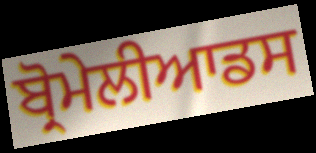
ਬ੍ਰੋਮੇਲੀਆਡਸ